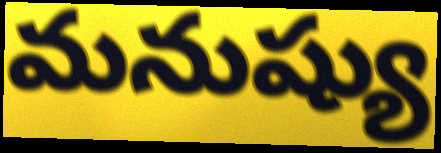
మనుష్యు